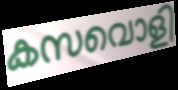
കസവൊളി